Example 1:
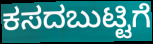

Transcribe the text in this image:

ಕಸದಬುಟ್ಟಿಗೆ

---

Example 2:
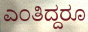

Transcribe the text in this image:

ಎಂತಿದ್ದರೂ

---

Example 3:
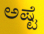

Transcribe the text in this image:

ಅಷ್ಟೆ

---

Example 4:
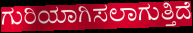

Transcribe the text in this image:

ಗುರಿಯಾಗಿಸಲಾಗುತ್ತಿದೆ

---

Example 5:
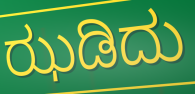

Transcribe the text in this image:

ಝಡಿದು